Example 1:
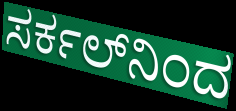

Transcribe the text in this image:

ಸರ್ಕಲ್‌ನಿಂದ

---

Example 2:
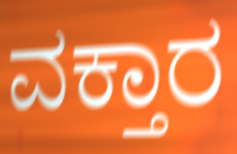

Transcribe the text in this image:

ವಕ್ತಾರ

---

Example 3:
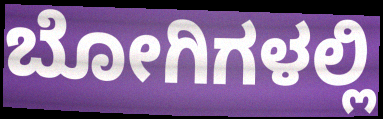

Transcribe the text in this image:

ಬೋಗಿಗಳಲ್ಲಿ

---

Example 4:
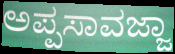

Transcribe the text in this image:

ಅಪ್ಪಸಾವಜ್ಜಾ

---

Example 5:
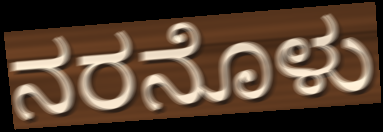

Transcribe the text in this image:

ನರನೊಳು